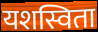
यशस्विता